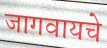
जागवायचे